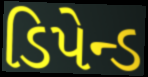
ડિપેન્ડ